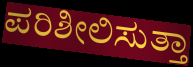
ಪರಿಶೀಲಿಸುತ್ತಾ